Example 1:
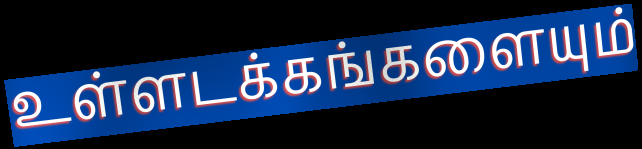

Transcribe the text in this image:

உள்ளடக்கங்களையும்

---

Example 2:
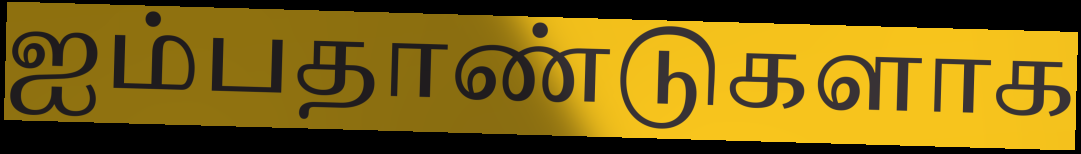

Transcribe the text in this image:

ஐம்பதாண்டுகளாக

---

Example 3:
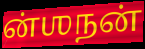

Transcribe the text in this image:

ன்ஶநன்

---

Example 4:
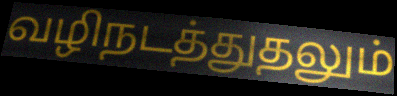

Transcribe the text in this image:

வழிநடத்துதலும்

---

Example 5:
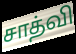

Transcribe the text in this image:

சாத்வி